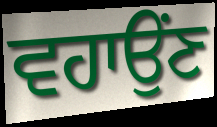
ਵਹਾਉਂਣ